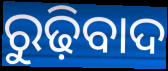
ରୁଢ଼ିବାଦ